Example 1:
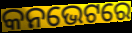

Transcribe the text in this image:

କନଭେଟରେ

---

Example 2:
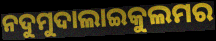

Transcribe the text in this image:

ନଦୁମୁଦାଲାଇକୁଲମର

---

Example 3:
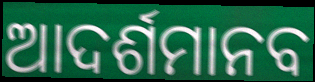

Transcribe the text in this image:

ଆଦର୍ଶମାନବ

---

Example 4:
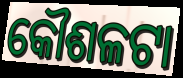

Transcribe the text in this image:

କୌଶଳଟା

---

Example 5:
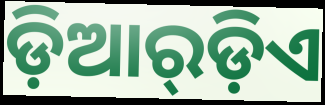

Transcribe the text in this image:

ଡ଼ିଆର୍‌ଡ଼ିଏ